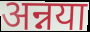
अन्नया